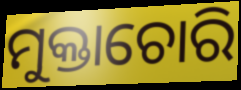
ମୁକ୍ତାଚୋରି